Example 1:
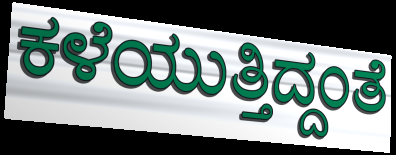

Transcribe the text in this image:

ಕಳೆಯುತ್ತಿದ್ದಂತೆ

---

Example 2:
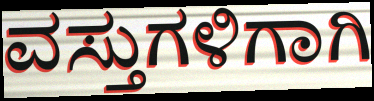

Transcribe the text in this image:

ವಸ್ತುಗಳಿಗಾಗಿ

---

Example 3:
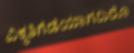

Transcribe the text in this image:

ವಿಕೃತಿಗೆಡೆಯಾಗದಿರೊ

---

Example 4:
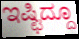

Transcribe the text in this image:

ಇಷ್ಟಿದ್ದೂ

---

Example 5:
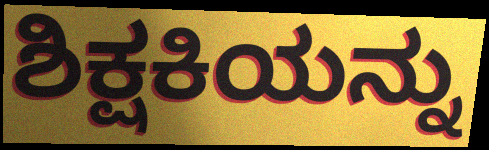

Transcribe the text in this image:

ಶಿಕ್ಷಕಿಯನ್ನು